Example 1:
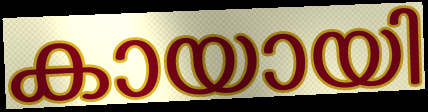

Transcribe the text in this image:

കായായി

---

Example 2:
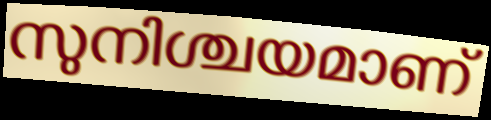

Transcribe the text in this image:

സുനിശ്ചയമാണ്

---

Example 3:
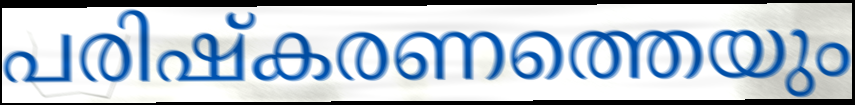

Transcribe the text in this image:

പരിഷ്കരണത്തെയും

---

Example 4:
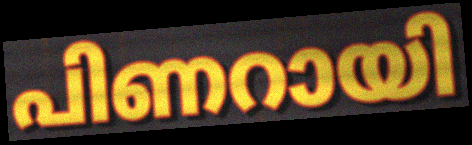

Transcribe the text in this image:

പിണറായി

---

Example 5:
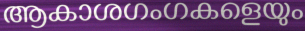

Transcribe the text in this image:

ആകാശഗംഗകളെയും